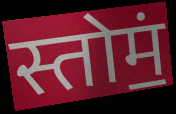
स्तोमं॒